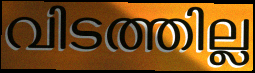
വിടത്തില്ല